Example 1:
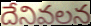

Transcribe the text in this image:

దేనివలన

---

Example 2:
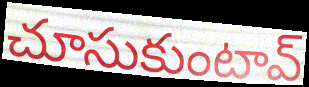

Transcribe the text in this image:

చూసుకుంటావ్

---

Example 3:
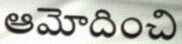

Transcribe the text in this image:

ఆమోదించి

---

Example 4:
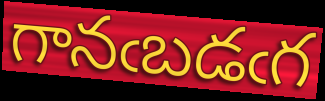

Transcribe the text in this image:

గానఁబడఁగ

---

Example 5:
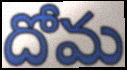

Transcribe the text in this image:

దోమ